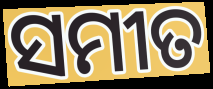
ସମୀତ